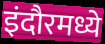
इंदौरमध्ये